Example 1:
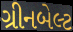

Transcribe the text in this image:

ગ્રીનબેલ્ટ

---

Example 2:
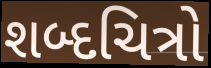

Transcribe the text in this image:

શબ્દચિત્રો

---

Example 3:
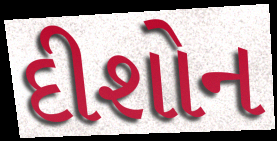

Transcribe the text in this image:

દીશોન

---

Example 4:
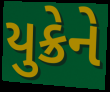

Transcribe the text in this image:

યુક્રેને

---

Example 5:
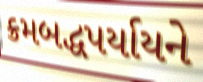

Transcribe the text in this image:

ક્રમબદ્ધપર્યાયને